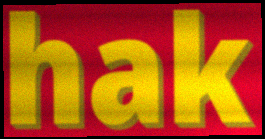
hak